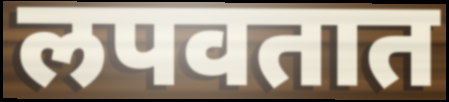
लपवतात